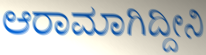
ಆರಾಮಾಗಿದ್ದೀನಿ